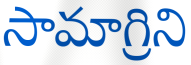
సామాగ్రిని